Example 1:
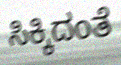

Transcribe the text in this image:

ಸಿಕ್ಕಿದಂತೆ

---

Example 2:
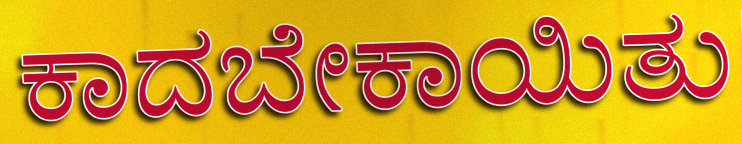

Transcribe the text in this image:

ಕಾದಬೇಕಾಯಿತು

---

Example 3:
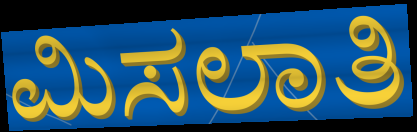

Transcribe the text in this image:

ಮಿಸಲಾತಿ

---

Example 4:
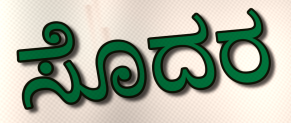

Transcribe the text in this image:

ಸೊದರ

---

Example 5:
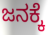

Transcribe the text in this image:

ಜನಕ್ಕೆ